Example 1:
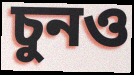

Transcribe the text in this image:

চুনও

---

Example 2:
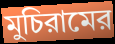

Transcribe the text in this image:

মুচিরামের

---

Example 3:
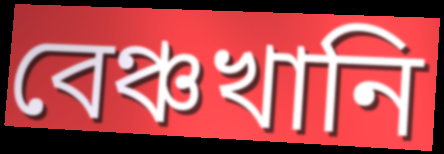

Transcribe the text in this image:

বেঞ্চখানি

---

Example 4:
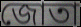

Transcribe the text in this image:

জোতা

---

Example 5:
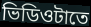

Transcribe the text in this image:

ভিডিওটাতে